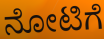
ನೋಟಿಗೆ